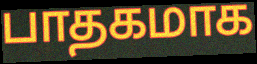
பாதகமாக